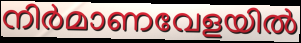
നിർമാണവേളയിൽ